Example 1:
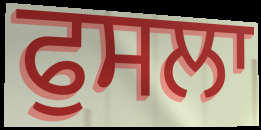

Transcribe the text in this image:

ਫੁਸਲਾ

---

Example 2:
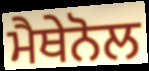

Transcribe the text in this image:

ਮੈਥੇਨੋਲ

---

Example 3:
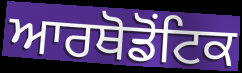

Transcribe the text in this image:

ਆਰਥੋਡੋਂਟਿਕ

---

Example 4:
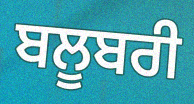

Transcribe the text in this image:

ਬਲੂਬਰੀ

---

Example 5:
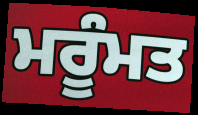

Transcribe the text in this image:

ਮਰੂੰਮਤ